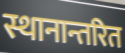
स्थानान्तरित